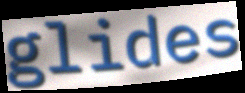
glides